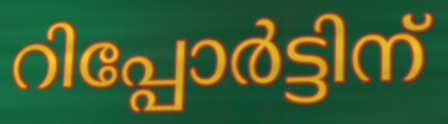
റിപ്പോർട്ടിന്